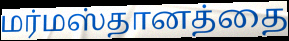
மர்மஸ்தானத்தை